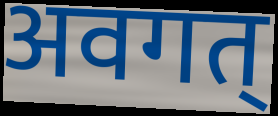
अवगत्